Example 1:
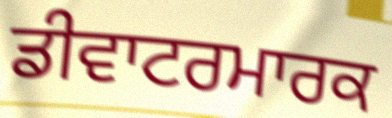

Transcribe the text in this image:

ਡੀਵਾਟਰਮਾਰਕ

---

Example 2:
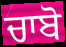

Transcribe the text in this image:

ਚਾਬੋ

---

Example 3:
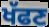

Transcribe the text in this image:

ਖੱਫਣ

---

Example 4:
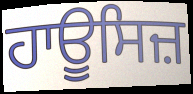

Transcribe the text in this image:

ਹਾਊਸਿਜ਼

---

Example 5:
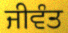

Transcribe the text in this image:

ਜੀਵੰਤ